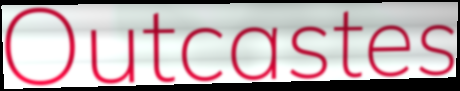
Outcastes